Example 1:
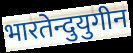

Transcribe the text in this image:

भारतेन्दुयुगीन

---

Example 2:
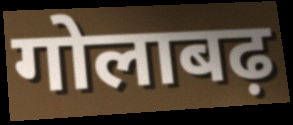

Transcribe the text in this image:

गोलाबढ़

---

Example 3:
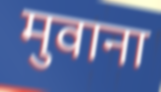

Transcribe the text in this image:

मुवाना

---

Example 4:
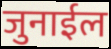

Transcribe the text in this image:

जुनाईल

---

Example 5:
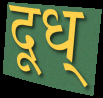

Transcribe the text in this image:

दूध्